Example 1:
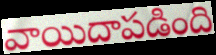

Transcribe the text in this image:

వాయిదాపడింది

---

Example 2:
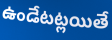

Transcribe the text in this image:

ఉండేటట్లయితే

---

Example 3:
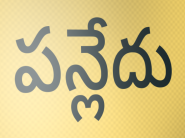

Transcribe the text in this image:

పన్లేదు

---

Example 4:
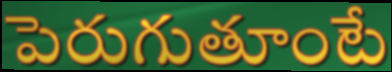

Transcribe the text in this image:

పెరుగుతూంటే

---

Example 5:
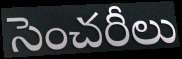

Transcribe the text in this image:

సెంచరీలు